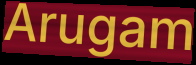
Arugam